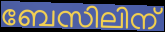
ബേസിലിന്